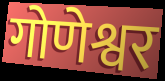
गोणेश्वर